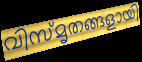
വിസ്മൃതങ്ങളായി